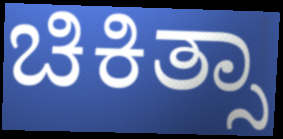
ಚಿಕಿತ್ಸಾ